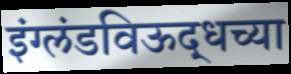
इंग्लंडविऊद्धच्या